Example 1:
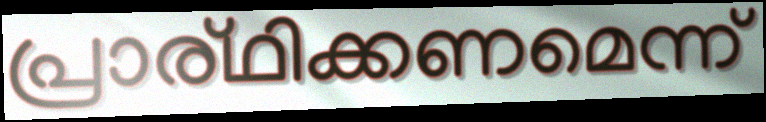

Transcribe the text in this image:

പ്രാര്ഥിക്കണമെന്ന്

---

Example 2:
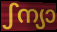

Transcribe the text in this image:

ഽന്യാ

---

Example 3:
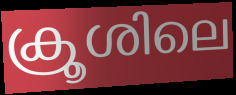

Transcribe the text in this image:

ക്രൂശിലെ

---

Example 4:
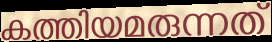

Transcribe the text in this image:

കത്തിയമരുന്നത്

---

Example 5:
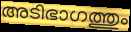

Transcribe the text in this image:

അടിഭാഗത്തും